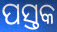
ପସ୍ତକ